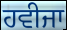
ਹਵੀਜਾ